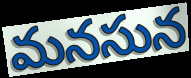
మనసున